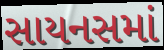
સાયનસમાં